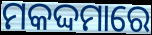
ମକଦ୍ଦମାରେ